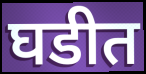
घडीत